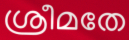
ശ്രീമതേ